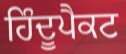
ਹਿੰਦੂਪੈਕਟ